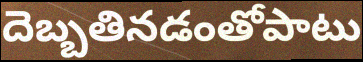
దెబ్బతినడంతోపాటు